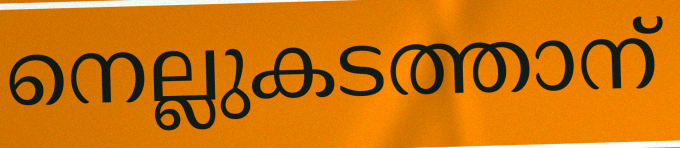
നെല്ലുകടത്താന്